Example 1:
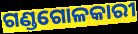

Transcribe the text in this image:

ଗଣ୍ଡଗୋଳକାରୀ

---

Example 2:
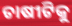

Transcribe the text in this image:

ଚାଷୀଟିକୁ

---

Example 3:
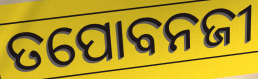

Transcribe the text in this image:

ତପୋବନଜୀ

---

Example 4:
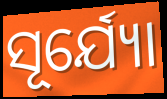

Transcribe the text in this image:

ସୂର୍ଯ୍ୟୋ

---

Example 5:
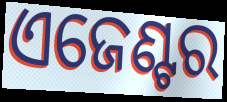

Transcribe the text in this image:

ଏଜେଣ୍ଟର